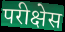
परीक्षेस